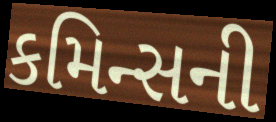
કમિન્સની